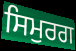
ਸਿਮੁਰਗ